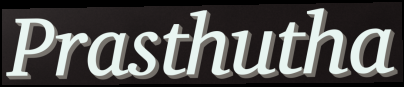
Prasthutha